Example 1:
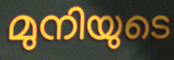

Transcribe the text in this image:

മുനിയുടെ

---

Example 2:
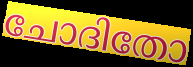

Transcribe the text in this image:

ചോദിതോ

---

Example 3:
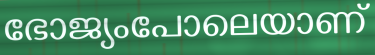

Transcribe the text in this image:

ഭോജ്യംപോലെയാണ്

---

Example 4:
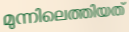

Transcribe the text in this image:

മുന്നിലെത്തിയത്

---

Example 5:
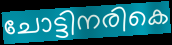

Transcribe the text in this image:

ചോട്ടിനരികെ